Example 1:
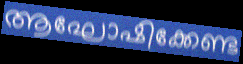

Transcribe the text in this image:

ആഘോഷിക്കേണ്ട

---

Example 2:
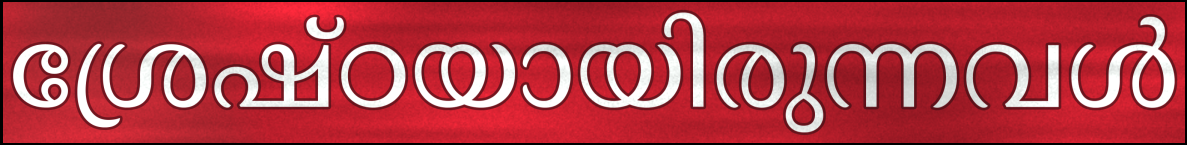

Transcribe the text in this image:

ശ്രേഷ്ഠയായിരുന്നവൾ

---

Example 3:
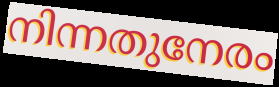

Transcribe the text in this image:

നിന്നതുനേരം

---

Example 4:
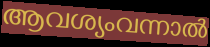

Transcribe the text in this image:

ആവശ്യംവന്നാൽ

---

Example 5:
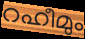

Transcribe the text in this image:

റഹീമും